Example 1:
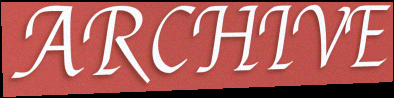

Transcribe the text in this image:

ARCHIVE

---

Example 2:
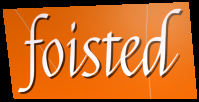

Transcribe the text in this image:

foisted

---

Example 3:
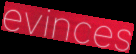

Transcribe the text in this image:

evinces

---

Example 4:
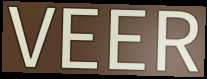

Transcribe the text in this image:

VEER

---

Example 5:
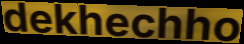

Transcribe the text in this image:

dekhechho